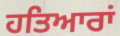
ਹਤਿਆਰਾਂ